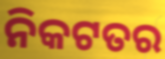
ନିକଟତର